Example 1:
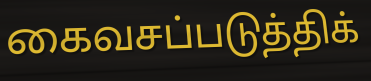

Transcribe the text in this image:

கைவசப்படுத்திக்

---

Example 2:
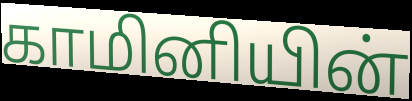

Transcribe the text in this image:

காமினியின்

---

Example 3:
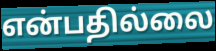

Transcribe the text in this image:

என்பதில்லை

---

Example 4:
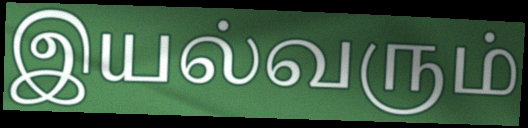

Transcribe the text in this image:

இயல்வரும்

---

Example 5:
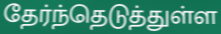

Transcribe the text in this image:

தேர்ந்தெடுத்துள்ள